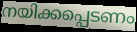
നയിക്കപ്പെടണം